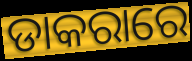
ଡାକରାରେ